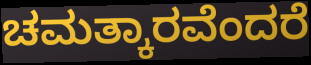
ಚಮತ್ಕಾರವೆಂದರೆ